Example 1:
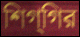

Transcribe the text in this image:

শিগ্‌গির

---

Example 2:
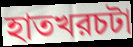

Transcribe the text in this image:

হাতখরচটা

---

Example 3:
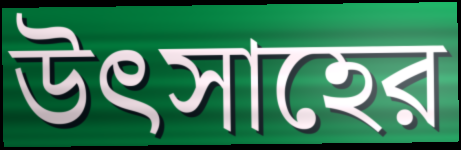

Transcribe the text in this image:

উৎসাহের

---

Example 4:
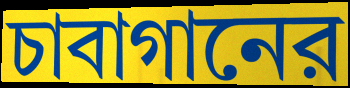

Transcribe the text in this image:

চাবাগানের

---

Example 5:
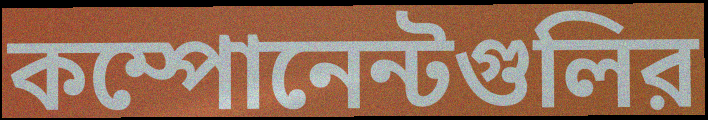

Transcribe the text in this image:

কম্পোনেন্টগুলির